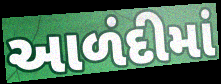
આળંદીમાં